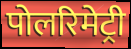
पोलरिमेट्री